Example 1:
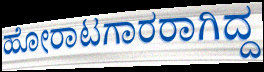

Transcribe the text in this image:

ಹೋರಾಟಗಾರರಾಗಿದ್ದ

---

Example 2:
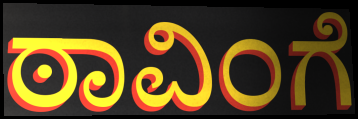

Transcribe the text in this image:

ಠಾವಿಂಗೆ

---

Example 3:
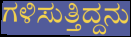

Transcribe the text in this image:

ಗಳಿಸುತ್ತಿದ್ದನು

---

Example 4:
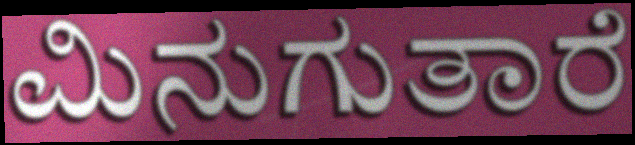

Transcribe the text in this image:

ಮಿನುಗುತಾರೆ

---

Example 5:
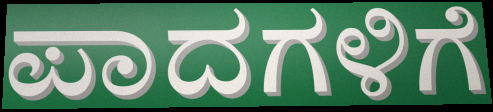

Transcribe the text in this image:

ಪಾದಗಳಿಗೆ